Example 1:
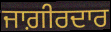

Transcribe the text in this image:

ਜਾਗ਼ੀਰਦਾਰ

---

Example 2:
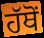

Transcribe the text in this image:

ਹੱਥੋਂ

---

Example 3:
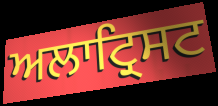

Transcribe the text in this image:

ਅਲਾਟ੍ਰਿਸਟ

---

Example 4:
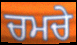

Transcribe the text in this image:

ਚਮਚੇ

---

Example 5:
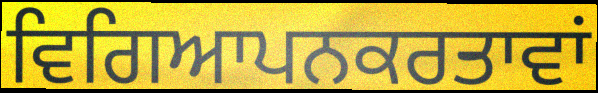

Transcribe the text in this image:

ਵਿਗਿਆਪਨਕਰਤਾਵਾਂ